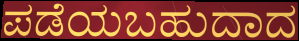
ಪಡೆಯಬಹುದಾದ